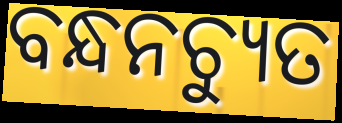
ବନ୍ଧନଚ୍ୟୁତ